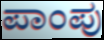
ಪಾಂಪು